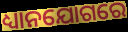
ଧ୍ୟାନଯୋଗରେ